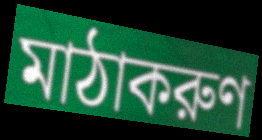
মাঠাকরুণ